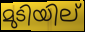
മുടിയില്